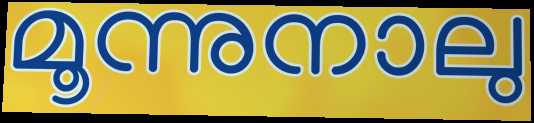
മൂന്നുനാലു